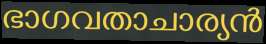
ഭാഗവതാചാര്യൻ